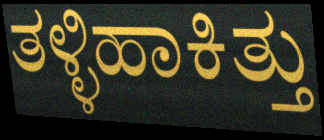
ತಳ್ಳಿಹಾಕಿತ್ತು